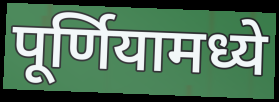
पूर्णियामध्ये